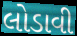
લોડાવી